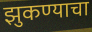
झुकण्याचा